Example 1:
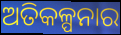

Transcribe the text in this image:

ଅତିକଳ୍ପନାର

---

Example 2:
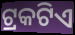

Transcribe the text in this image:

ଟ୍ରକଟିଏ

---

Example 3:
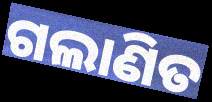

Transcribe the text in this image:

ଗଲାଣିତ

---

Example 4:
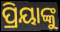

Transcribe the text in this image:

ପ୍ରିୟାଙ୍କୁ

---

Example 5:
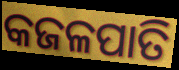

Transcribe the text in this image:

କଜଳପାତି